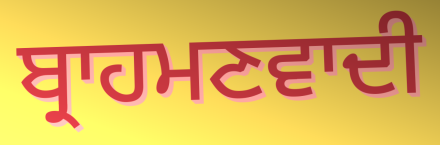
ਬ੍ਰਾਹਮਣਵਾਦੀ